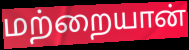
மற்றையான்